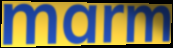
marm